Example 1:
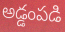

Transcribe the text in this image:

అడ్డంపడి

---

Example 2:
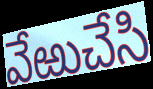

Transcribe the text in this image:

వేఱుచేసి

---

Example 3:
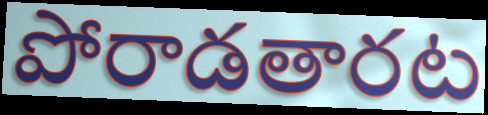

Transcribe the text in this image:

పోరాడతారట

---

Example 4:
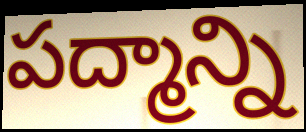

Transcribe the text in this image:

పద్మాన్ని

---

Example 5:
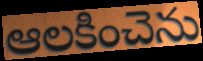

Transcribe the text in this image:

ఆలకించెను